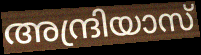
അന്ദ്രിയാസ്